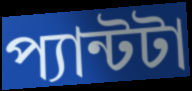
প্যান্টটা